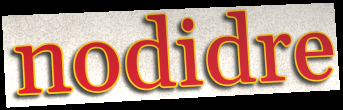
nodidre